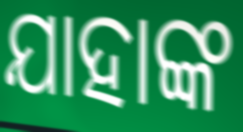
ଯାହାଙ୍କ